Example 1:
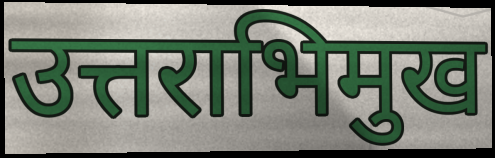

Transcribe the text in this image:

उत्तराभिमुख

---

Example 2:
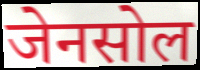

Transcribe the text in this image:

जेनसोल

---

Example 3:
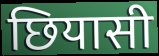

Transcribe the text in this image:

छियासी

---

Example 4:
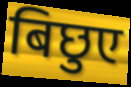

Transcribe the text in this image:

बिछुए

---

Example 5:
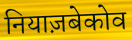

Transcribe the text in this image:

नियाज़बेकोव